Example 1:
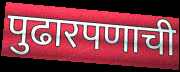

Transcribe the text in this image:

पुढारपणाची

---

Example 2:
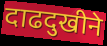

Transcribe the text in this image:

दाढदुखीने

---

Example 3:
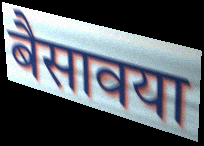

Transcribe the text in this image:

बैसावया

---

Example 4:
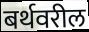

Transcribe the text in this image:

बर्थवरील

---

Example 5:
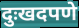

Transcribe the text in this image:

दुःखदपणे